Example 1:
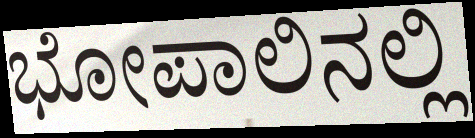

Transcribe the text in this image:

ಭೋಪಾಲಿನಲ್ಲಿ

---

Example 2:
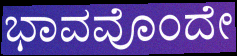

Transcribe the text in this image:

ಭಾವವೊಂದೇ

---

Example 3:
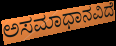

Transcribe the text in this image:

ಅಸಮಾಧಾನವಿದೆ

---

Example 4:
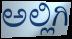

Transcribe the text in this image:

ಅಲ್ಲಿಗಿ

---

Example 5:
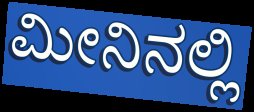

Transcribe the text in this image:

ಮೀನಿನಲ್ಲಿ